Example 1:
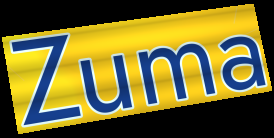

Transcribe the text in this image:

Zuma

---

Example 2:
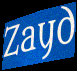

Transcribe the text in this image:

Zayd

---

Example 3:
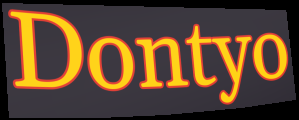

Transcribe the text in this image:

Dontyo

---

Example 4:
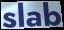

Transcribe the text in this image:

slab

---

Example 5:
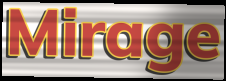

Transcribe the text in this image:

Mirage